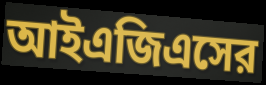
আইএজিএসের